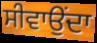
ਸੀਵਾਉਂਦਾ